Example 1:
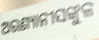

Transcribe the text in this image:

ଅରଣ୍ୟାନୀସଙ୍କୁଳ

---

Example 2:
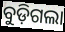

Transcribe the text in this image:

ବୁଡ଼ିଗଲା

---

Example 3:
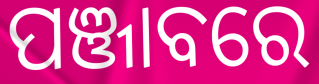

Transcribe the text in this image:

ପଞ୍ଜାବରେ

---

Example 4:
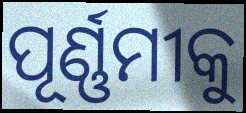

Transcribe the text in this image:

ପୂର୍ଣ୍ଣମୀକୁ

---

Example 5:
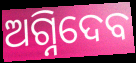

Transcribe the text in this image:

ଅଗ୍ନିଦେବ